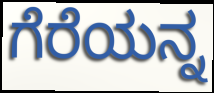
ಗೆರೆಯನ್ನ